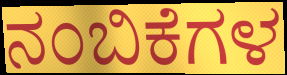
ನಂಬಿಕೆಗಳ